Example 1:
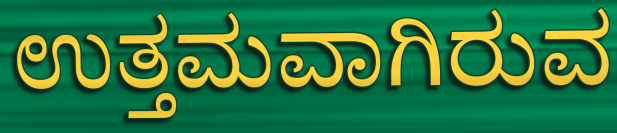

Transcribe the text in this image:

ಉತ್ತಮವಾಗಿರುವ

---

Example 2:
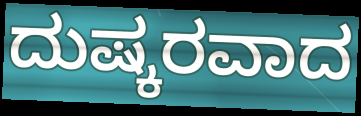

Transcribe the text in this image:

ದುಷ್ಕರವಾದ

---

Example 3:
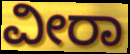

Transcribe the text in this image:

ವೀರಾ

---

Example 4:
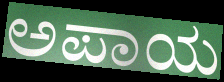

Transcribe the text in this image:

ಅಪಾಯ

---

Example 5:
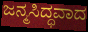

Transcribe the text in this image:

ಜನ್ಮಸಿದ್ಧವಾದ